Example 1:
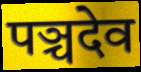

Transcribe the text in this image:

पञ्चदेव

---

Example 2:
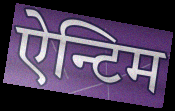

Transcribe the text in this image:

ऐन्टिम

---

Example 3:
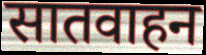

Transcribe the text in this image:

सातवाहन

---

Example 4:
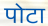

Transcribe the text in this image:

पोटा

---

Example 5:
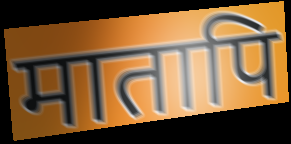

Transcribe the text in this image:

मातापि